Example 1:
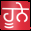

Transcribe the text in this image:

ਹੂਨੇ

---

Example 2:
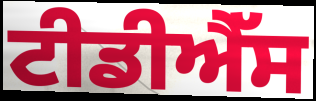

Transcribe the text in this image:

ਟੀਡੀਐੱਸ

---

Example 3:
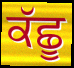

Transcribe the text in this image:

ਕੱਛੂ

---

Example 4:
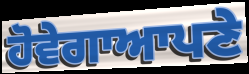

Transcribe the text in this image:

ਹੋਵੇਗਾਆਪਣੇ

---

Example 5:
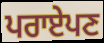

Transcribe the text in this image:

ਪਰਾਏਪਣ